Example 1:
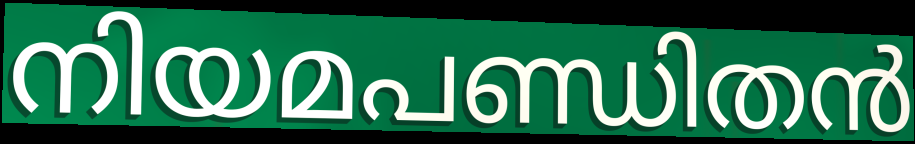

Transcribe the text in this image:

നിയമപണ്ഡിതൻ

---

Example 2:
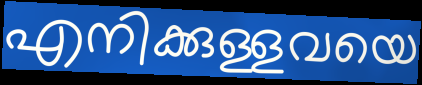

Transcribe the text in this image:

എനിക്കുള്ളവയെ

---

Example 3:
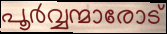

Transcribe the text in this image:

പൂർവ്വന്മാരോട്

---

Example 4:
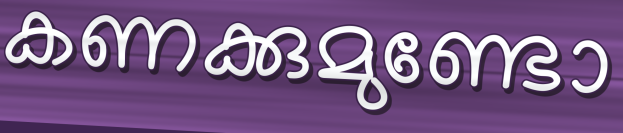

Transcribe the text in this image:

കണക്കുമുണ്ടോ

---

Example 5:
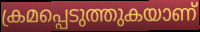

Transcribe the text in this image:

ക്രമപ്പെടുത്തുകയാണ്